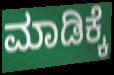
ಮಾಡಿಕ್ಕೆ